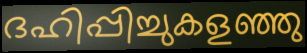
ദഹിപ്പിച്ചുകളഞ്ഞു